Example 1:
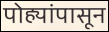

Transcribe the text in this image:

पोह्यांपासून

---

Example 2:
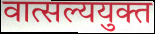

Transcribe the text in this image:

वात्सल्ययुक्त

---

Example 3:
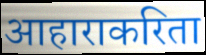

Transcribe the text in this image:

आहाराकरिता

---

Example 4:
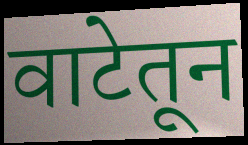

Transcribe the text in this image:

वाटेतून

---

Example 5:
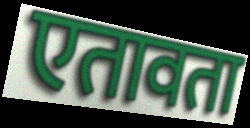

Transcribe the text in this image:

एतावता